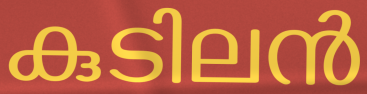
കുടിലൻ